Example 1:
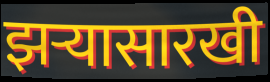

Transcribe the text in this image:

झर्‍यासारखी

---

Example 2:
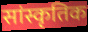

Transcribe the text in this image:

सांस्कृतिक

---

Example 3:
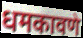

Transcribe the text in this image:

धमकावणे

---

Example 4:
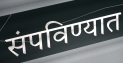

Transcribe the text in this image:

संपविण्यात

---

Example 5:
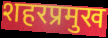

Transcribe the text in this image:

शहरप्रमुख